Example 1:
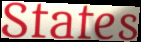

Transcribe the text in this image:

States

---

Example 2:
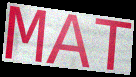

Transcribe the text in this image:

MAT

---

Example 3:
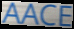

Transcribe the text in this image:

AACE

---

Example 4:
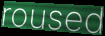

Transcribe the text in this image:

roused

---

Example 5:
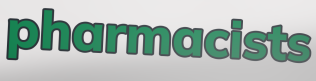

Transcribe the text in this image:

pharmacists